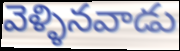
వెళ్ళినవాడు